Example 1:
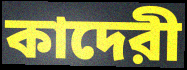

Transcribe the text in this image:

কাদেরী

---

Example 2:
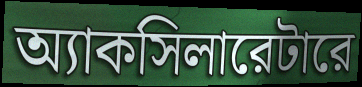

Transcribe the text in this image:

অ্যাকসিলারেটারে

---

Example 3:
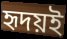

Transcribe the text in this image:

হৃদয়ই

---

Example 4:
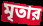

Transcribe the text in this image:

মৃতার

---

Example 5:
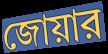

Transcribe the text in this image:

জোয়ার